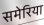
समेरिया